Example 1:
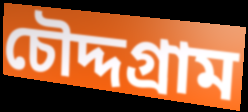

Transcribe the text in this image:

চৌদ্দগ্রাম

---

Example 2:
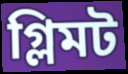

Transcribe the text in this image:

গ্লিমট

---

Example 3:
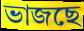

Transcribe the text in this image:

ভাজছে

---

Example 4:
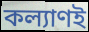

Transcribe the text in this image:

কল্যাণই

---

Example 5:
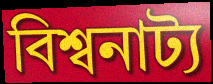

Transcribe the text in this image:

বিশ্বনাট্য